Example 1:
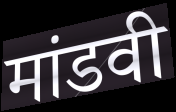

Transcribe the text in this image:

मांडवी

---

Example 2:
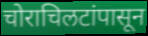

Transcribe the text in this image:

चोराचिलटांपासून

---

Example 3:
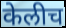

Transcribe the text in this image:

केलीच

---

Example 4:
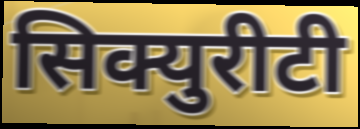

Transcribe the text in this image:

सिक्युरीटी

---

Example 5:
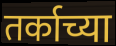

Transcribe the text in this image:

तर्काच्या